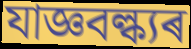
যাজ্ঞবল্ক্যৰ